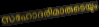
സഹോദരിമാരുടെയും